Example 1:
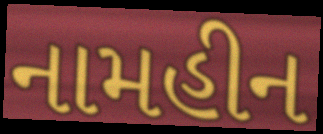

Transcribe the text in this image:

નામહીન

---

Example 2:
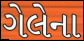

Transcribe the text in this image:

ગેલેના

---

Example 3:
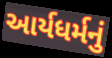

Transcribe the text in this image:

આર્યધર્મનું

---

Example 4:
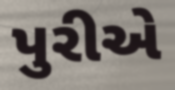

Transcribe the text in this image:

પુરીએ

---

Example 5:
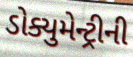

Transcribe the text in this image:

ડોક્યુમેન્ટ્રીની